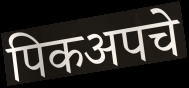
पिकअपचे